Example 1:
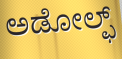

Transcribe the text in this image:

ಅಡೋಲ್ಫ್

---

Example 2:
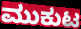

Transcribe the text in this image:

ಮುಕುಟ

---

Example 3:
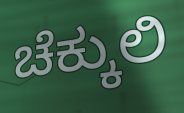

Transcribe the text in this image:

ಚೆಕ್ಕುಲಿ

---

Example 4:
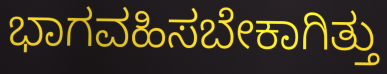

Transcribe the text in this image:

ಭಾಗವಹಿಸಬೇಕಾಗಿತ್ತು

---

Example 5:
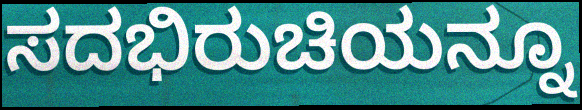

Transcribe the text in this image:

ಸದಭಿರುಚಿಯನ್ನೂ